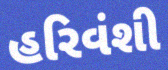
હરિવંશી